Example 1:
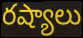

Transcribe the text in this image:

రష్యాలు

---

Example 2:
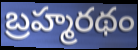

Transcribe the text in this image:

బ్రహ్మరథం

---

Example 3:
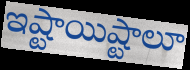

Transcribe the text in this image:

ఇష్టాయిష్టాలూ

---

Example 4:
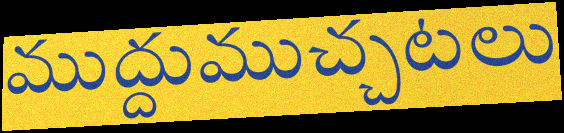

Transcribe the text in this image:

ముద్దుముచ్చటలు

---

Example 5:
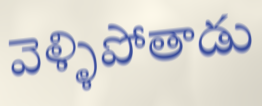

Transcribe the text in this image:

వెళ్ళిపోతాడు